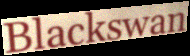
Blackswan